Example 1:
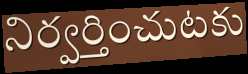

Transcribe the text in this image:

నిర్వర్తించుటకు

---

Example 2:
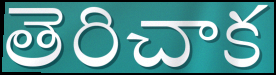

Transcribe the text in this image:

తెరిచాక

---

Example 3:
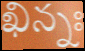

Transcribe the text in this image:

ఖిన్నః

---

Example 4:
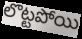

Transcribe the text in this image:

లొట్టపోయి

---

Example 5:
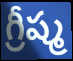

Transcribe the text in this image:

గ్రీష్మ